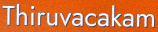
Thiruvacakam